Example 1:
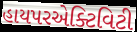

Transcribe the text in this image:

હાયપરએક્ટિવિટી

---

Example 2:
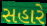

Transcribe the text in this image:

સહારે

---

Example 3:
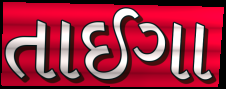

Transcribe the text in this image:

તાઈગા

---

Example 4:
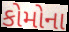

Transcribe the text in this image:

કોમોના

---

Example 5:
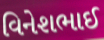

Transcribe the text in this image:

વિનેશભાઈ